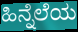
ಹಿನ್ನೆಲೆಯ